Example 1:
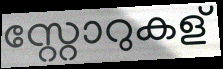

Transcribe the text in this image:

സ്റ്റോറുകള്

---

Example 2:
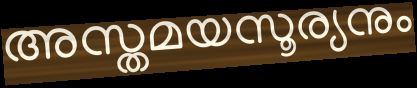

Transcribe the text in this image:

അസ്തമയസൂര്യനും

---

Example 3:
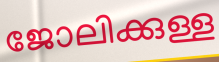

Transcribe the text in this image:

ജോലിക്കുള്ള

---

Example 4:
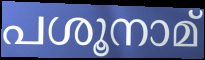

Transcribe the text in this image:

പശൂനാമ്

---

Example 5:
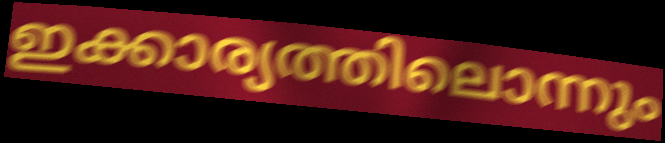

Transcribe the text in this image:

ഇക്കാര്യത്തിലൊന്നും